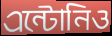
এন্টোনিও